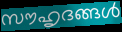
സൗഹൃദങ്ങൾ